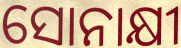
ସୋନାକ୍ଷୀ